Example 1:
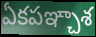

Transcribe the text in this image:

ఏకపఞ్చాశ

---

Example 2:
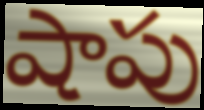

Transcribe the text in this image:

షాపు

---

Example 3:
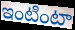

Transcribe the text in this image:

ఇంటింటా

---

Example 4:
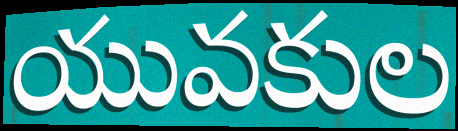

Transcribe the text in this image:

యువకుల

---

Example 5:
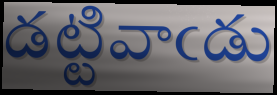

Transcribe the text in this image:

డట్టివాఁడు